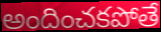
అందించకపోతే